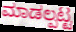
ಮಾಡಲ್ಪಟ್ಟ